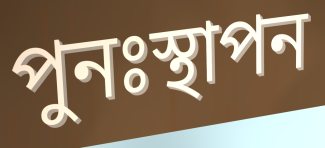
পুনঃস্থাপন